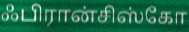
ஃபிரான்சிஸ்கோ